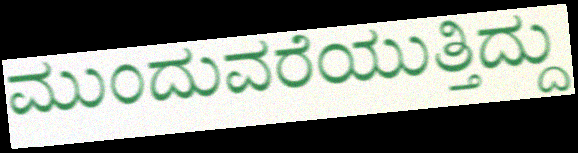
ಮುಂದುವರೆಯುತ್ತಿದ್ದು